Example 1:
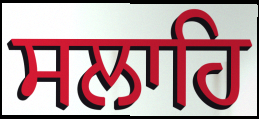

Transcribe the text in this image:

ਸਲਾਹਿ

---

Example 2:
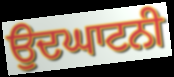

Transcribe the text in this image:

ਉਦਘਾਟਨੀ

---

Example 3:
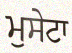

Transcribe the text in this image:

ਮੁਸੇਟਾ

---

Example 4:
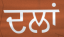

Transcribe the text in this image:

ਦਲਾਂ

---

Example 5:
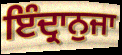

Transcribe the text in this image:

ਇੰਦ੍ਰਾਨੁਜਾ